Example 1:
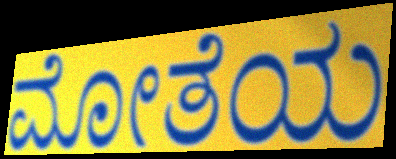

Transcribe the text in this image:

ಮೋತೆಯ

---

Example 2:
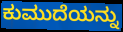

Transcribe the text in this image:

ಕುಮುದೆಯನ್ನು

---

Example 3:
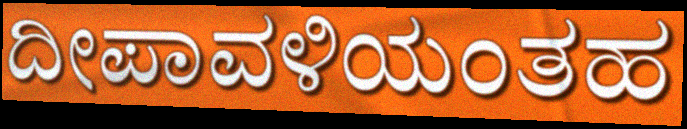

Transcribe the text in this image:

ದೀಪಾವಳಿಯಂತಹ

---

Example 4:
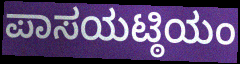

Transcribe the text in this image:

ಪಾಸಯಟ್ಠಿಯಂ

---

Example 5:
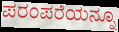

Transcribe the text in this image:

ಪರಂಪರೆಯನ್ನೂ